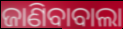
ଜାଣିବାବାଲା